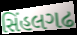
સિંહલગઢ